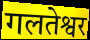
गलतेश्वर